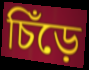
চিঁড়ে